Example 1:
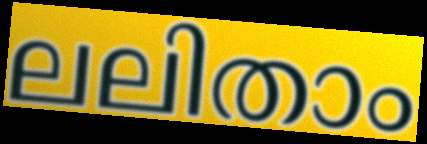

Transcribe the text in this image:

ലലിതാം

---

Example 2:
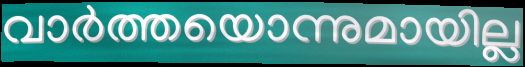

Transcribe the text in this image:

വാർത്തയൊന്നുമായില്ല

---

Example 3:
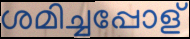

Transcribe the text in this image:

ശമിച്ചപ്പോള്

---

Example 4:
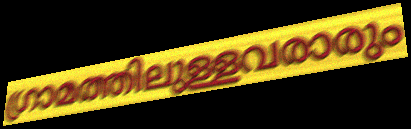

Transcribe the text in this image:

ഗ്രാമത്തിലുള്ളവരാരും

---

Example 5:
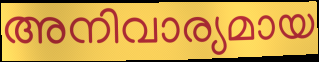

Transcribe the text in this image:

അനിവാര്യമായ